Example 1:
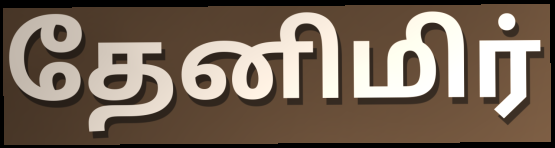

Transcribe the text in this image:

தேனிமிர்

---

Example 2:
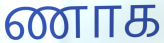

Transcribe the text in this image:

ணாக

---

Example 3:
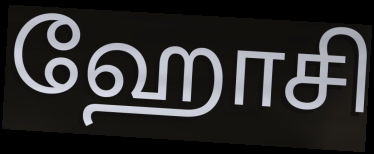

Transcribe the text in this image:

ஹோசி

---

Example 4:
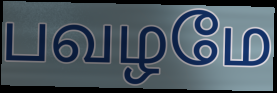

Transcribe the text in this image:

பவழமே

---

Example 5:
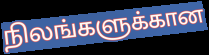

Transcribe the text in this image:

நிலங்களுக்கான